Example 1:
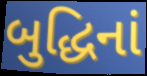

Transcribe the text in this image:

બુદ્ધિનાં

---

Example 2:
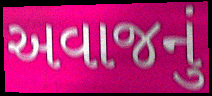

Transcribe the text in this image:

અવાજનું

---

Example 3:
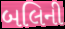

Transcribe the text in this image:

બલિની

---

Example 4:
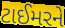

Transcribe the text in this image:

ટાઈમરને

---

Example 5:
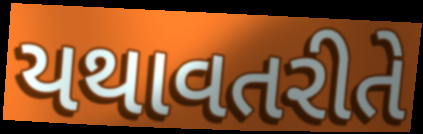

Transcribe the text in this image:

યથાવતરીતે